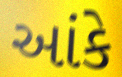
આંકે